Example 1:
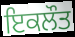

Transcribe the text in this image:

ਇਕਲੌਤ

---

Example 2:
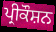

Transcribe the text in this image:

ਪ੍ਰੀਕੌਸ਼ਨ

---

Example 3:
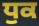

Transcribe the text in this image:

ਧੁਕ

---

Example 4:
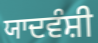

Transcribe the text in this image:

ਯਾਦਵੰਸ਼ੀ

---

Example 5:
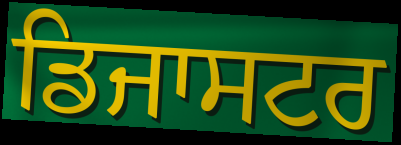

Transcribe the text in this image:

ਡਿਜਾਸਟਰ